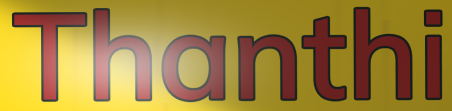
Thanthi